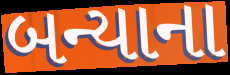
બન્યાના